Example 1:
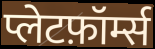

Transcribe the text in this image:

प्लेटफ़ॉर्म्स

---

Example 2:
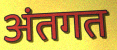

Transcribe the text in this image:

अंतगत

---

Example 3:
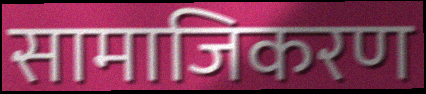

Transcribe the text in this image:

सामाजिकरण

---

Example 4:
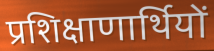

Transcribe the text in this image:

प्रशिक्षाणार्थियों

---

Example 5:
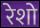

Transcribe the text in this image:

रेशो